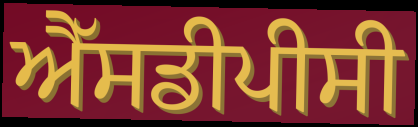
ਐੱਸਡੀਪੀਸੀ